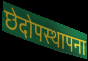
छेदोपस्थापना